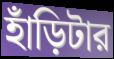
হাঁড়িটার